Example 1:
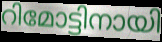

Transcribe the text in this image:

റിമോട്ടിനായി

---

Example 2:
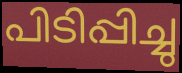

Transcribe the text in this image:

പിടിപ്പിച്ചു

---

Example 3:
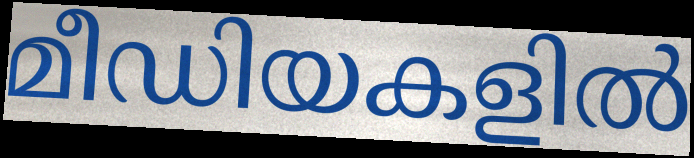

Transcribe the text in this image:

മീഡിയകളിൽ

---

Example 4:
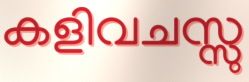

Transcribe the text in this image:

കളിവചസ്സു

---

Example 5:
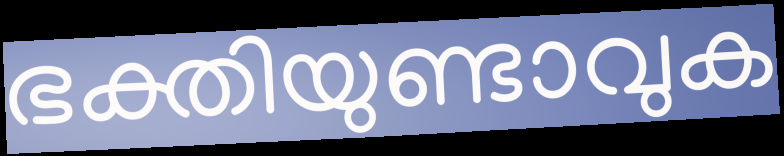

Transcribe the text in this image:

ഭക്തിയുണ്ടാവുക